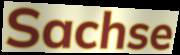
Sachse